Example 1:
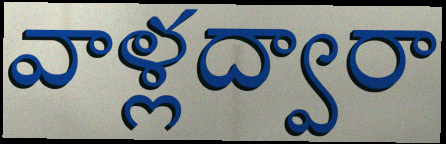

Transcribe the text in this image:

వాళ్లద్వారా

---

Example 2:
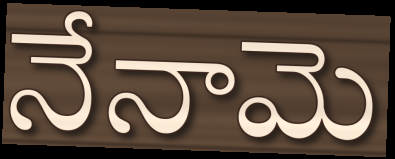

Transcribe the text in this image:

నేనామె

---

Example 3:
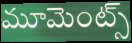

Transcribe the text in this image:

మూమెంట్స్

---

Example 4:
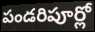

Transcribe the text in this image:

పండరిపూర్లో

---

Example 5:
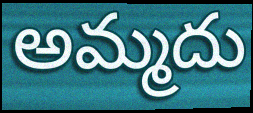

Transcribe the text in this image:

అమ్మదు